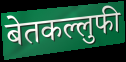
बेतकल्लुफी